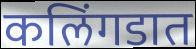
कलिंगडात